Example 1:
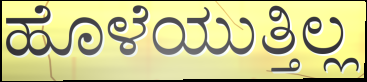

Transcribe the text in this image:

ಹೊಳೆಯುತ್ತಿಲ್ಲ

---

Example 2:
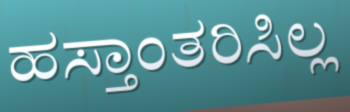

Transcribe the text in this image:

ಹಸ್ತಾಂತರಿಸಿಲ್ಲ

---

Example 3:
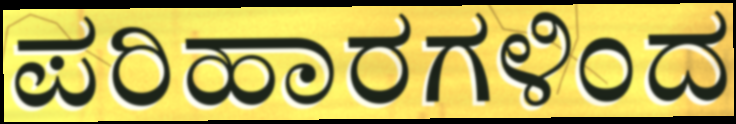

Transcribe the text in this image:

ಪರಿಹಾರಗಳಿಂದ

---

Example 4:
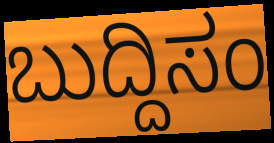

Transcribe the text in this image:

ಬುದ್ದಿಸಂ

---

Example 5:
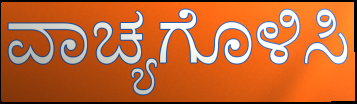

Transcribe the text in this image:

ವಾಚ್ಯಗೊಳಿಸಿ